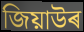
জিয়াউৰ